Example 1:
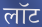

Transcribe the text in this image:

लॉट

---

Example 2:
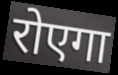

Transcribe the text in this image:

रोएगा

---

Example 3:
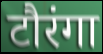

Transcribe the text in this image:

टौरंगा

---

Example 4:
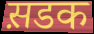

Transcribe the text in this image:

स़डक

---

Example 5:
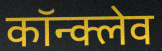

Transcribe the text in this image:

कॉन्क्लेव